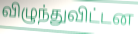
விழுந்துவிட்டன